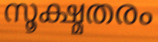
സൂക്ഷ്മതരം